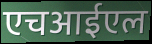
एचआईएल